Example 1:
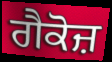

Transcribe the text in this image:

ਗੈਕੋਜ਼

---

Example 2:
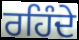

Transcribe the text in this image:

ਰਹਿੰਦੇ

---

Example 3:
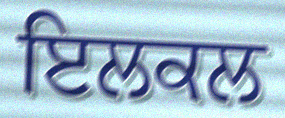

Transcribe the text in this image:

ਇਲਕਲ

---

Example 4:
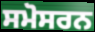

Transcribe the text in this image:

ਸਮੋਸਰਨ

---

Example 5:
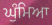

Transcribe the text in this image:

ਘੁੰਮਿਆ